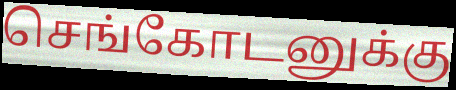
செங்கோடனுக்கு